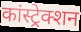
कांस्ट्रेक्शन